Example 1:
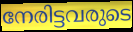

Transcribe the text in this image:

നേരിട്ടവരുടെ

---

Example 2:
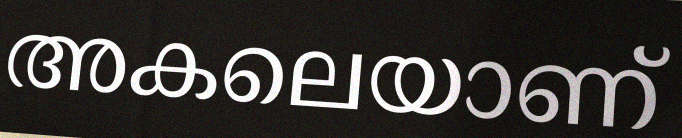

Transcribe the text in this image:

അകലെയാണ്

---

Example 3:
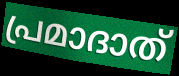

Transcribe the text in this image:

പ്രമാദാത്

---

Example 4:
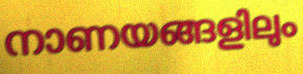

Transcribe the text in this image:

നാണയങ്ങളിലും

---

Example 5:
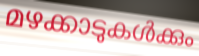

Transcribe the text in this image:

മഴക്കാടുകൾക്കും